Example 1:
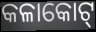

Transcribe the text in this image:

କଳାକୋଟ୍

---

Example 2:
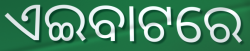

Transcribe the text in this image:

ଏଇବାଟରେ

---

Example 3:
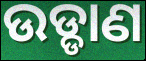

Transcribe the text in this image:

ଉଡ୍ଡାଣ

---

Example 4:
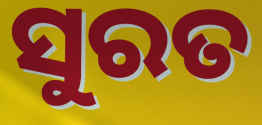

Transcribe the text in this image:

ସୁରତ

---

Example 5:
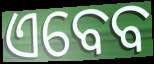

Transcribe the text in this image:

ଏବେବ